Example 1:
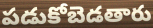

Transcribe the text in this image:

పడుకోబెడతారు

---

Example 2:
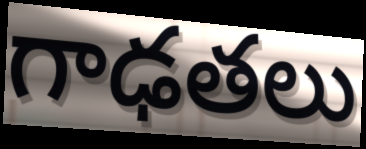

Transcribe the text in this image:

గాఢతలు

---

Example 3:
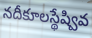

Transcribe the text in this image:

నదీకూలస్థేష్వివ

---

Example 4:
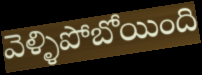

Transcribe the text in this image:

వెళ్ళిపోబోయింది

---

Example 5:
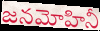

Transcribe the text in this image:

జనమోహినీ